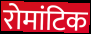
रोमांटिक